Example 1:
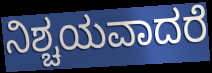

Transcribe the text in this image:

ನಿಶ್ಚಯವಾದರೆ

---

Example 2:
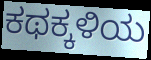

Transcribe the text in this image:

ಕಥಕ್ಕಳಿಯ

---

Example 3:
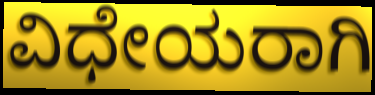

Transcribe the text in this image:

ವಿಧೇಯರಾಗಿ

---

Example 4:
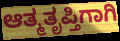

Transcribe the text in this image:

ಆತ್ಮತೃಪ್ತಿಗಾಗಿ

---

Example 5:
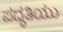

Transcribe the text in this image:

ಪದ್ಧತಿಯು